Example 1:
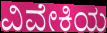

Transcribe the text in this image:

ವಿವೇಕಿಯ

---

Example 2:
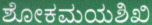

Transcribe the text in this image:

ಶೋಕಮಯಶಿಖಿ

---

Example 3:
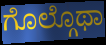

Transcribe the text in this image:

ಗೊಲ್ಗೊಥಾ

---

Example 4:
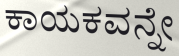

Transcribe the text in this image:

ಕಾಯಕವನ್ನೇ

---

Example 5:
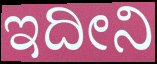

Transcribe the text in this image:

ಇದೀನಿ